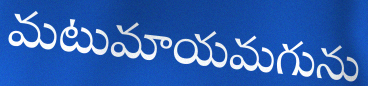
మటుమాయమగును